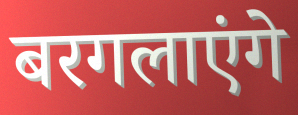
बरगलाएंगे